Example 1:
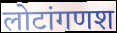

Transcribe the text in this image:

लोटांगणश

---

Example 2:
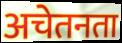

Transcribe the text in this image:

अचेतनता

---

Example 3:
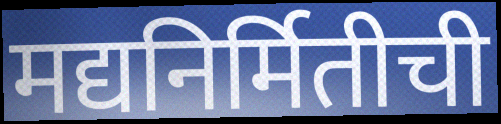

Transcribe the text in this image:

मद्यनिर्मितीची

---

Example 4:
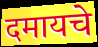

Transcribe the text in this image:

दमायचे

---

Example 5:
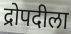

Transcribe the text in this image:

द्रोपदीला